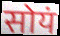
सोयं